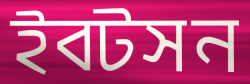
ইবটসন